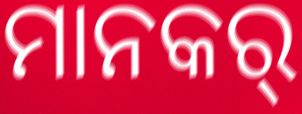
ମାନକର୍